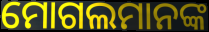
ମୋଗଲମାନଙ୍କ